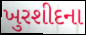
ખુરશીદના